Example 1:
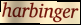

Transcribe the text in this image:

harbinger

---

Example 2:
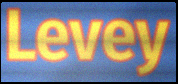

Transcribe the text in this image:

Levey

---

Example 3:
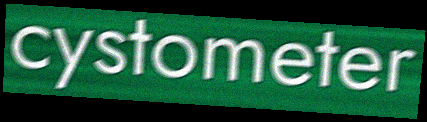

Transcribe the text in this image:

cystometer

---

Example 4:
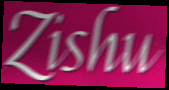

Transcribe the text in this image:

Zishu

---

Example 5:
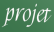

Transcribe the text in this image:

projet